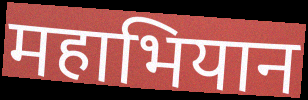
महाभियान